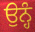
ਉਨ੍ਹੰ